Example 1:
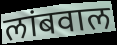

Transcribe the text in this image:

लांबवाल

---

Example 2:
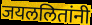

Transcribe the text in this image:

जयललितांनी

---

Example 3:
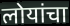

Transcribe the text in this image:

लोयांचा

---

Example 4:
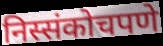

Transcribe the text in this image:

निस्संकोचपणे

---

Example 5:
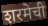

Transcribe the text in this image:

शरमेची